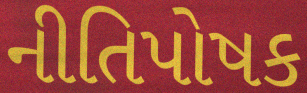
નીતિપોષક